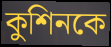
কুশিনকে